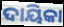
ଦାୟିକା